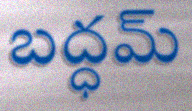
బద్ధమ్